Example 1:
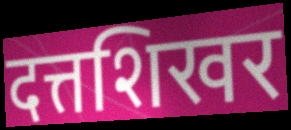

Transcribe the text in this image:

दत्तशिखर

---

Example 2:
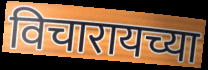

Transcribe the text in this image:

विचारायच्या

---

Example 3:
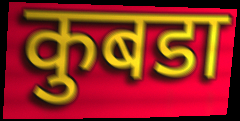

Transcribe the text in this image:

कुबडा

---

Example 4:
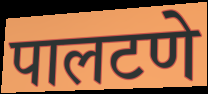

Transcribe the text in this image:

पालटणे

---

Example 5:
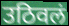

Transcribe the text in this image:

उठिवलं